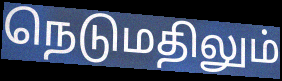
நெடுமதிலும்